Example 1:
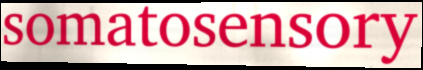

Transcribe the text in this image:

somatosensory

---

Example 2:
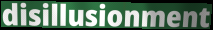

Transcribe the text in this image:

disillusionment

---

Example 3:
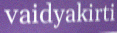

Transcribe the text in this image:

vaidyakirti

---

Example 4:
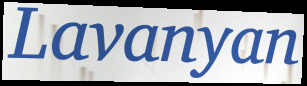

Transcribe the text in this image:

Lavanyan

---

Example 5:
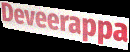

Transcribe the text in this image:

Deveerappa